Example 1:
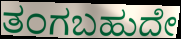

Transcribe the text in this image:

ತಂಗಬಹುದೇ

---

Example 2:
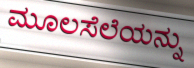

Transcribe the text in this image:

ಮೂಲಸೆಲೆಯನ್ನು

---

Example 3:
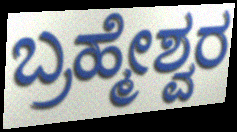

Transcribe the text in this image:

ಬ್ರಹ್ಮೇಶ್ವರ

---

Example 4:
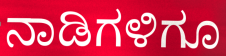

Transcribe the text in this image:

ನಾಡಿಗಳಿಗೂ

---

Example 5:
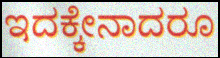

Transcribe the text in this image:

ಇದಕ್ಕೇನಾದರೂ